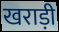
खराड़ी